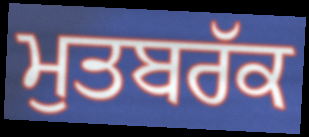
ਮੁਤਬਰੱਕ